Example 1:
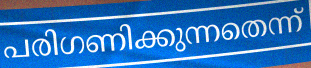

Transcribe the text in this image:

പരിഗണിക്കുന്നതെന്ന്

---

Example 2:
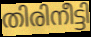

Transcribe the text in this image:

തിരിനീട്ടി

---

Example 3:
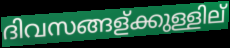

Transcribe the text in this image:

ദിവസങ്ങള്ക്കുള്ളില്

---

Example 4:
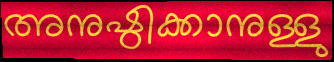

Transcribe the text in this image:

അനുഷ്ഠിക്കാനുള്ളു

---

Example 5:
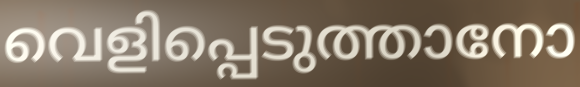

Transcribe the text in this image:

വെളിപ്പെടുത്താനോ